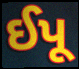
ઈપૂ